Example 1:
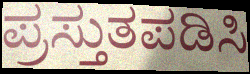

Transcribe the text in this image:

ಪ್ರಸ್ತುತಪಡಿಸಿ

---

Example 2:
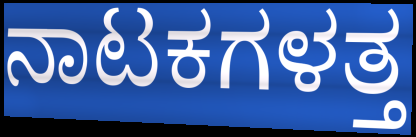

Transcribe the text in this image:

ನಾಟಕಗಳತ್ತ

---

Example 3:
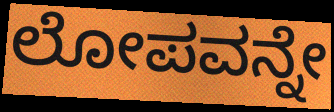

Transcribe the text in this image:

ಲೋಪವನ್ನೇ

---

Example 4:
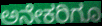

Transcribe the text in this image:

ಅನೇಕರಿಗೂ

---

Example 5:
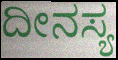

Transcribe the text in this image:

ದೀನಸ್ಯ